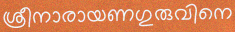
ശ്രീനാരായണഗുരുവിനെ